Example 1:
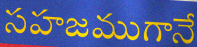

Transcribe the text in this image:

సహజముగానే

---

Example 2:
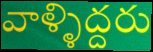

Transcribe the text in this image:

వాళ్ళిద్దరు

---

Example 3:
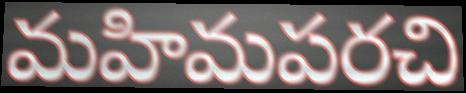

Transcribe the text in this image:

మహిమపరచి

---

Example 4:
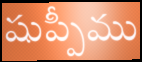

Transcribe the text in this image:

షుప్పీము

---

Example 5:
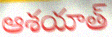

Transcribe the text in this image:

ఆశయాత్